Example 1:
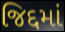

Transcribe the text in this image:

જિદ્દમાં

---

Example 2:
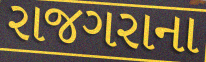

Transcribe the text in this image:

રાજગરાના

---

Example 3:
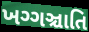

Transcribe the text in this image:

ખગ્ગઞ્ચાતિ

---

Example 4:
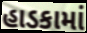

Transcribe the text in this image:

હાડકામાં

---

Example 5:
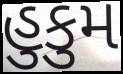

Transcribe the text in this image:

હુકુમ